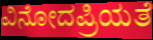
ವಿನೋದಪ್ರಿಯತೆ